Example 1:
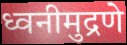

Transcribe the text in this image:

ध्वनीमुद्रणे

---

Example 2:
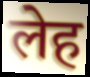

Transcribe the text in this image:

लेह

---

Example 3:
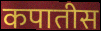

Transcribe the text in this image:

कपातीस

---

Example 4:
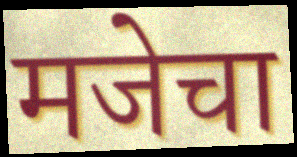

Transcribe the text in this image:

मजेचा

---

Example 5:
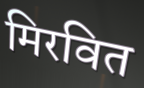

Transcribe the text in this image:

मिरवित